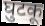
घुटकू